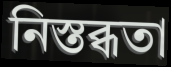
নিস্তব্ধতা